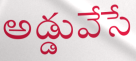
అడ్డువేసే